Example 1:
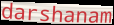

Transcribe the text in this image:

darshanam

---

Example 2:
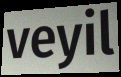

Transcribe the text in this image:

veyil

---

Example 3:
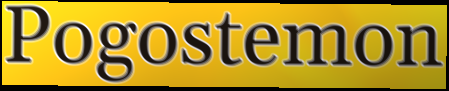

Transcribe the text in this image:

Pogostemon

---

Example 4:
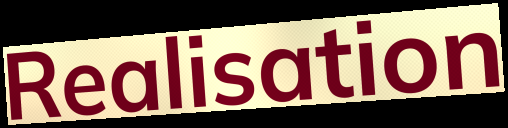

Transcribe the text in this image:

Realisation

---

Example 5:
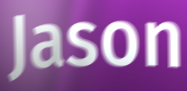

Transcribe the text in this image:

Jason